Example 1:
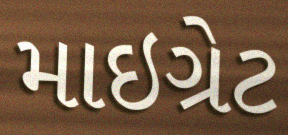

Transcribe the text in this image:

માઇગ્રેટ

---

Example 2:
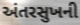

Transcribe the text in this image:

અંતરસુખની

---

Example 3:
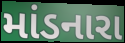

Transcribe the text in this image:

માંડનારા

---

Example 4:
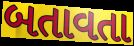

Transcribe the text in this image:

બતાવતા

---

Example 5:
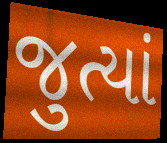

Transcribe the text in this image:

જુત્યાં